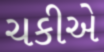
ચકીએ